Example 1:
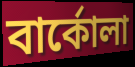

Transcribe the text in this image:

বার্কোলা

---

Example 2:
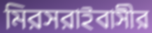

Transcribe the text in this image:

মিরসরাইবাসীর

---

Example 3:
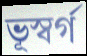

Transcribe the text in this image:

ভূস্বর্গ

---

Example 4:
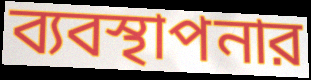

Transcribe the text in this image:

ব্যবস্থাপনার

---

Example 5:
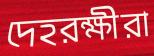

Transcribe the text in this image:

দেহরক্ষীরা